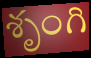
శృంగి